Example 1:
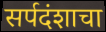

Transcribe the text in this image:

सर्पदंशाचा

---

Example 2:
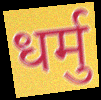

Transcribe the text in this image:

धर्मु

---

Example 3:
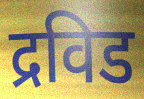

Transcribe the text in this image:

द्रविड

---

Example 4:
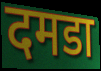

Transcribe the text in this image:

दमडा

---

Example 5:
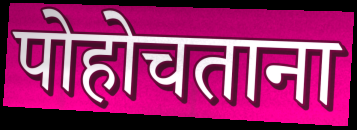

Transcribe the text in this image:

पोहोचताना